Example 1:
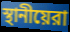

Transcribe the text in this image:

স্থানীয়েরা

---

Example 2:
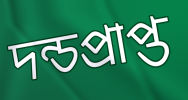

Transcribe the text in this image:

দন্ডপ্রাপ্ত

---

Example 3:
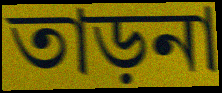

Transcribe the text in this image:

তাড়না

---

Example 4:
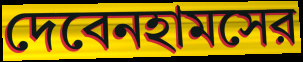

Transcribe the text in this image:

দেবেনহামসের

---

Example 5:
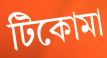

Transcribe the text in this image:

টিকোমা